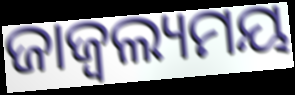
ଜାଜ୍ୱଲ୍ୟମୟ